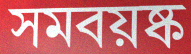
সমবয়ষ্ক